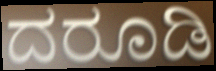
ದರೂಡಿ